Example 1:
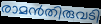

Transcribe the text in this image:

രാമൻതിരുവടി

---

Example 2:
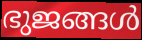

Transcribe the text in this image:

ഭുജങ്ങൾ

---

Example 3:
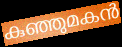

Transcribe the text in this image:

കുഞ്ഞുമകൻ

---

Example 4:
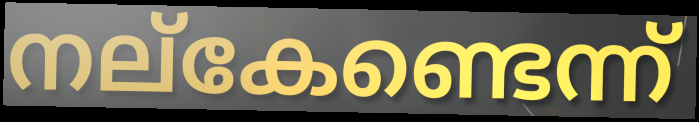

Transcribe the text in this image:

നല്കേണ്ടെന്ന്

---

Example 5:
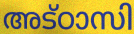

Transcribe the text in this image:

അട്ഠാസി